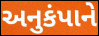
અનુકંપાને